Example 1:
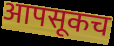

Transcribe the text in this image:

आपसूकच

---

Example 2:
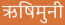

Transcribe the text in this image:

ऋषिमुनी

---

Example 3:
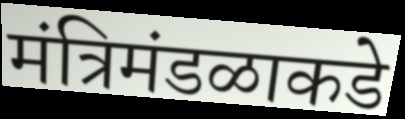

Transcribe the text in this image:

मंत्रिमंडळाकडे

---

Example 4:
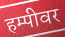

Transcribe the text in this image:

हम्पीवर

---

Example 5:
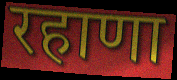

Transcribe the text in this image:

रहाणा